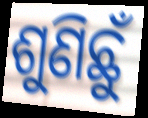
ଶୁଣିଛୁଁ